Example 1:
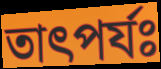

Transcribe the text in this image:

তাৎপর্যঃ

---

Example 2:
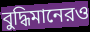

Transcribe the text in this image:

বুদ্ধিমানেরও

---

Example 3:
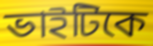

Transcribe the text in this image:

ভাইটিকে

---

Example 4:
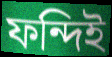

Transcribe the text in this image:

ফন্দিই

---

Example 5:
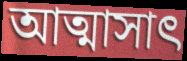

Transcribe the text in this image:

আত্মাসাৎ